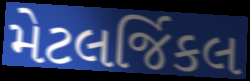
મેટલર્જિકલ